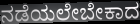
ನಡೆಯಲೇಬೇಕಾದ